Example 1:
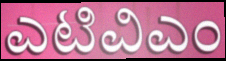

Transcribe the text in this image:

ಎಟಿವಿಎಂ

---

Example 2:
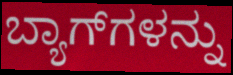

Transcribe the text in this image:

ಬ್ಯಾಗ್‌ಗಳನ್ನು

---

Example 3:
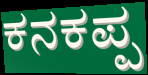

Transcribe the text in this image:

ಕನಕಪ್ಪ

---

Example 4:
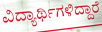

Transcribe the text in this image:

ವಿದ್ಯಾರ್ಥಿಗಳಿದ್ದಾರೆ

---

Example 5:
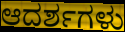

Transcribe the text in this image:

ಆದರ್ಶಗಳು